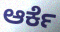
ಆರ್ಕೆ